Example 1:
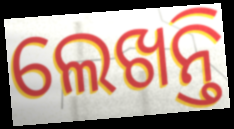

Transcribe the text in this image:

ଲେଖନ୍ତି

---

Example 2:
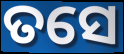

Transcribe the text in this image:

ତସେ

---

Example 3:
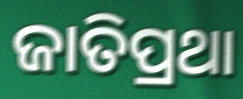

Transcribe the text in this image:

ଜାତିପ୍ରଥା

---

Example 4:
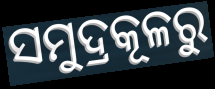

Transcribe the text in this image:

ସମୁଦ୍ରକୂଳରୁ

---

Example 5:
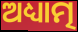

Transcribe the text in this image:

ଅଧ୍ୟାତ୍ମ